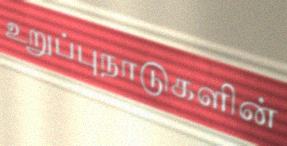
உறுப்புநாடுகளின்